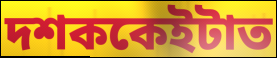
দশককেইটাত